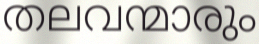
തലവന്മാരും